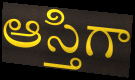
ఆస్తిగా